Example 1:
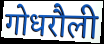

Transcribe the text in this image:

गोधरौली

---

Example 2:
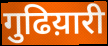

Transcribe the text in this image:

गुढिय़ारी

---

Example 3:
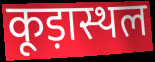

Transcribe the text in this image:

कूड़ास्थल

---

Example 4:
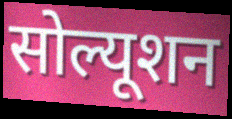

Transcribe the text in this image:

सोल्यूशन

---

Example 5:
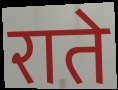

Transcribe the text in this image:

राते